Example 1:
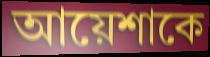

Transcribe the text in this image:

আয়েশাকে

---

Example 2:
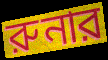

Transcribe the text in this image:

রুনার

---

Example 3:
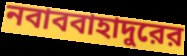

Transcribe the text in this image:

নবাববাহাদুরের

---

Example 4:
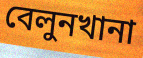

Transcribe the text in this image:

বেলুনখানা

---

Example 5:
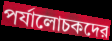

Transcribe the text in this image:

পর্যালোচকদের